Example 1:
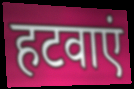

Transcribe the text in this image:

हटवाएं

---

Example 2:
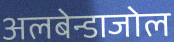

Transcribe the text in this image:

अलबेन्डाजोल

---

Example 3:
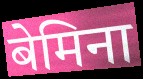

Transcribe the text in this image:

बेमिना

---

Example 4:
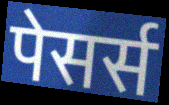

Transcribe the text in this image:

पेसर्स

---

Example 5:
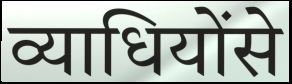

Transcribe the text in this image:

व्याधियोंसे